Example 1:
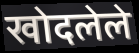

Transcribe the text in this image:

खोदलेले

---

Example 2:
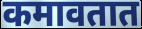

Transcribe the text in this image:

कमावतात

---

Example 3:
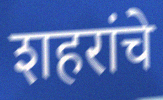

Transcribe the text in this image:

शहरांचे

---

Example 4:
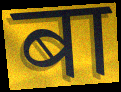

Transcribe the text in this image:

बा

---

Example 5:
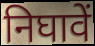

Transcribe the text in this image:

निघावें